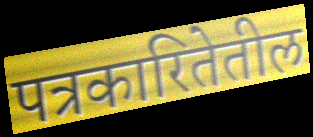
पत्रकारितेतील